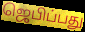
ஜெபிப்பது